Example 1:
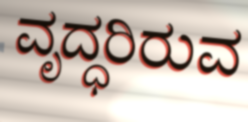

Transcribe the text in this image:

ವೃದ್ಧರಿರುವ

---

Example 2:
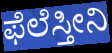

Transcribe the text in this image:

ಫೆಲೆಸ್ತೀನಿ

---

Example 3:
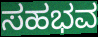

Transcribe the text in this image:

ಸಹಭವ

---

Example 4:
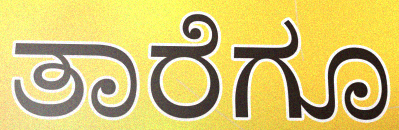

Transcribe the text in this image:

ತಾರೆಗೂ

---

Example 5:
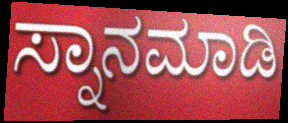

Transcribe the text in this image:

ಸ್ನಾನಮಾಡಿ